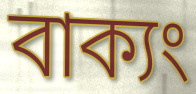
বাক্যং